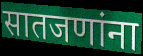
सातजणांना